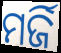
ମର୍ଜି